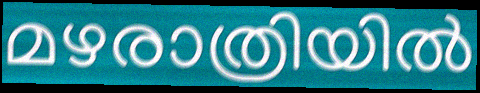
മഴരാത്രിയിൽ